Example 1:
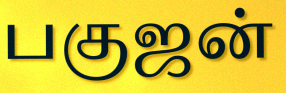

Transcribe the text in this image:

பகுஜன்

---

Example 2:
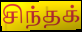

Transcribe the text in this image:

சிந்தக்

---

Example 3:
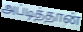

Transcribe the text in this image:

அப்டித்தான்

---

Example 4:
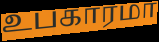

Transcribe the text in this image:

உபகாரமா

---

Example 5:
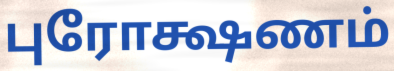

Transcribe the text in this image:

புரோக்ஷணம்